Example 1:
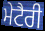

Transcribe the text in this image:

ਮੇਟੈਰੀ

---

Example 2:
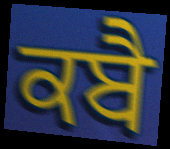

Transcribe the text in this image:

ਕਬੈ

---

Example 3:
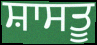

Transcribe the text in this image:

ਸ਼ਾਸਤੂ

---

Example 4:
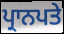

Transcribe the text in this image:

ਪ੍ਰਾਨਪਤੇ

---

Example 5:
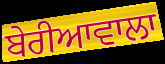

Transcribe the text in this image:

ਬੇਰੀਆਵਾਲਾ